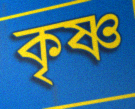
কৃষ্ণ